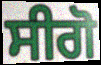
ਸੀਗੋ